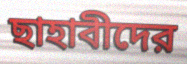
ছাহাবীদের